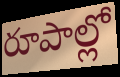
రూపాల్లో